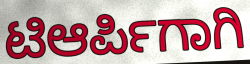
ಟಿಆರ್ಪಿಗಾಗಿ